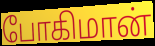
போகிமான்